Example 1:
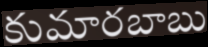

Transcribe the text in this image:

కుమారబాబు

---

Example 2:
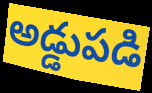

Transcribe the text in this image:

అడ్డుపడి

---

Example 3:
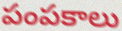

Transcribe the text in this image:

పంపకాలు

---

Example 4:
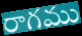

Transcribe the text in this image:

రాగము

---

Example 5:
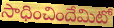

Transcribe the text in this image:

సాధించిందేమిటో